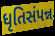
ધૃતિસંપન્ન